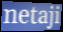
netaji